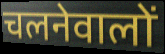
चलनेवालों